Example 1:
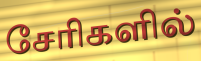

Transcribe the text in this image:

சேரிகளில்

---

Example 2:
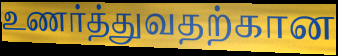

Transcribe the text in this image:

உணர்த்துவதற்கான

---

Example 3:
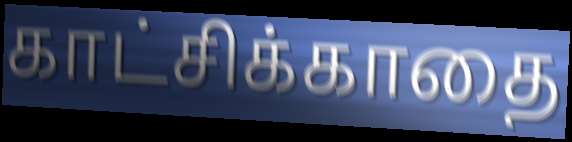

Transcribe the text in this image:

காட்சிக்காதை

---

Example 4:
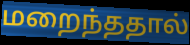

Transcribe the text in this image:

மறைந்ததால்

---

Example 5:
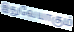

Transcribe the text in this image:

இதுவேயாகும்